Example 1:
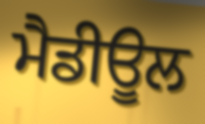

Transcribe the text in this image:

ਮੈਡੀਊਲ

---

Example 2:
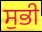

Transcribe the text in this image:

ਸੁਭੀ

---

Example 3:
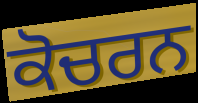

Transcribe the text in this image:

ਕੋਚਰਨ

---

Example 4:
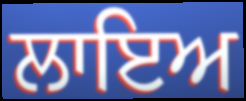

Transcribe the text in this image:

ਲਾਇਅ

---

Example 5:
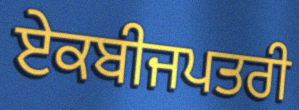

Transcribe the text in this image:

ਏਕਬੀਜਪਤਰੀ